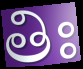
తిః